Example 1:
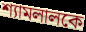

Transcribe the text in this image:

শ্যামলালকে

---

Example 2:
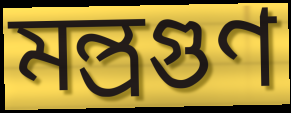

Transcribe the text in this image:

মন্ত্রগুণ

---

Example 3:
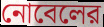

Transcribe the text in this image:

নোবেলের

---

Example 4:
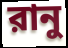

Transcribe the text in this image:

রানু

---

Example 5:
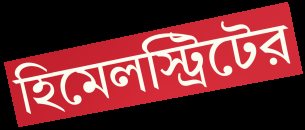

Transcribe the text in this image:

হিমেলস্ট্রিটের